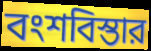
বংশবিস্তার